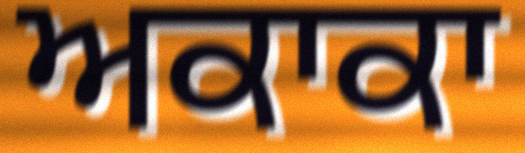
ਅਕਾਕਾ